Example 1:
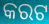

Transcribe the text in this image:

କରଟ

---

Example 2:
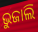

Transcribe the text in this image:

ଭୁଜାଲି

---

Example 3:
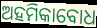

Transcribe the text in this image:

ଅହମିକାବୋଧ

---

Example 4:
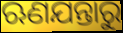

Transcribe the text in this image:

ଋଣଯନ୍ତାରୁ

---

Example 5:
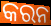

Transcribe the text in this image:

କରନ